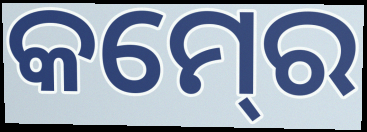
କମ୍‍ରେ